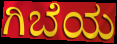
ಗಿಬೆಯ